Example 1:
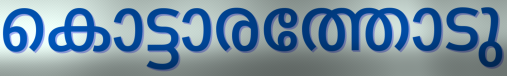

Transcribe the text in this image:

കൊട്ടാരത്തോടു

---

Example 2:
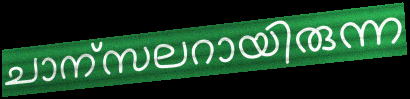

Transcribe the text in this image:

ചാന്സലറായിരുന്ന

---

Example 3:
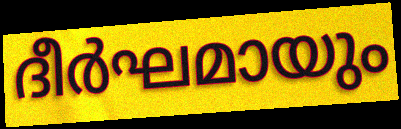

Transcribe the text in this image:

ദീർഘമായും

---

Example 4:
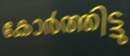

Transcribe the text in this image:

കോർത്തിട്ടു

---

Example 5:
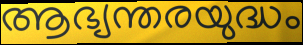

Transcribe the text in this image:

ആഭ്യന്തരയുദ്ധം